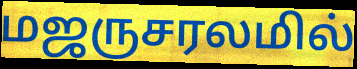
மஜருசரலமில்